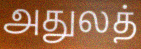
அதுலத்